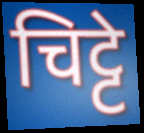
चिट्टे